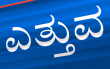
ಎತ್ತುವ